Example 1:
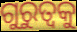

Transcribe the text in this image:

ଗୁରୁତ୍ବକୁ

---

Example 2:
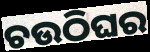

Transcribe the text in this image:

ଚଉଠିଘର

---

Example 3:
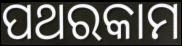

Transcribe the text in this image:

ପଥରକାମ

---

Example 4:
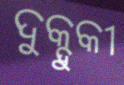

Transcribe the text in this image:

ଦୁକ୍ଦୁକୀ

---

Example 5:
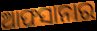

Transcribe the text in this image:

ଆଫସାନାର